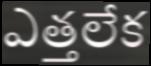
ఎత్తలేక